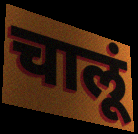
चालूं